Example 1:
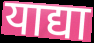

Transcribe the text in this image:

याद्या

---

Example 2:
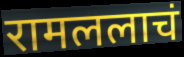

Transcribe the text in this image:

रामललाचं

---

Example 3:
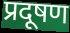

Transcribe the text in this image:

प्रदूषण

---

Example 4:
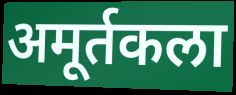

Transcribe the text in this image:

अमूर्तकला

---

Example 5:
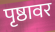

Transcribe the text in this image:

पृष्ठावर